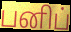
பனிப்